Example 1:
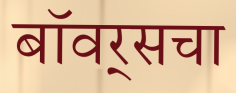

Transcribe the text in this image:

बॉवर्सचा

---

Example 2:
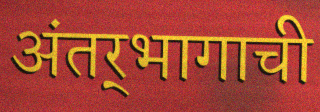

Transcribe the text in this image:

अंतर्भागाची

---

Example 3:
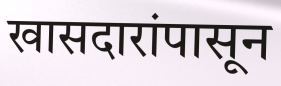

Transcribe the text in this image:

खासदारांपासून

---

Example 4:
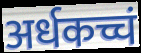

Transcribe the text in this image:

अर्धकच्चं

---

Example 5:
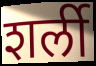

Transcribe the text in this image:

शर्ली